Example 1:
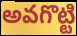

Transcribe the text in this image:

అవగొట్టి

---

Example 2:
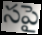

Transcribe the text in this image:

సపై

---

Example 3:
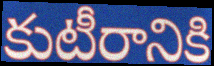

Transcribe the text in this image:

కుటీరానికి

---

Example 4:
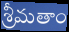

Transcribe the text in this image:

శ్రీమతాం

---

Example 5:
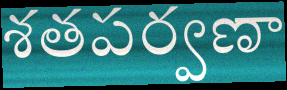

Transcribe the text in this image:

శతపర్వణా